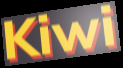
Kiwi